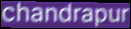
chandrapur